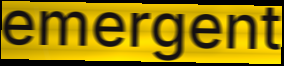
emergent